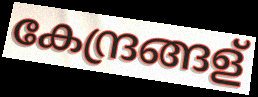
കേന്ദ്രങ്ങള്